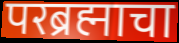
परब्रह्माचा